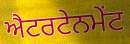
ਐਟਰਟੇਨਮੇਂਟ